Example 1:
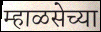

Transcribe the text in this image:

म्हाळसेच्या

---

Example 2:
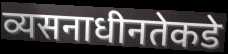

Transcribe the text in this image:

व्यसनाधीनतेकडे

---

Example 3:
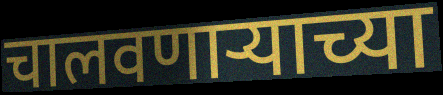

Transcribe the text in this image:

चालवणार्‍याच्या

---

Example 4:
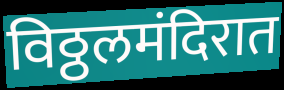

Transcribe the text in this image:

विठ्ठलमंदिरात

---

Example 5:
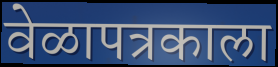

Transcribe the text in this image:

वेळापत्रकाला